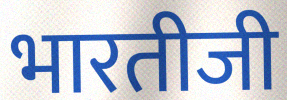
भारतीजी